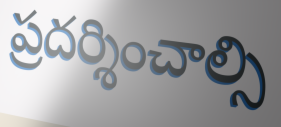
ప్రదర్శించాల్సి